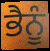
ਭੈਨੂੰ